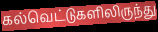
கல்வெட்டுகளிலிருந்து